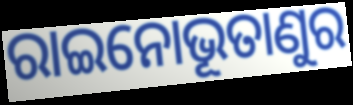
ରାଇନୋଭୂତାଣୁର